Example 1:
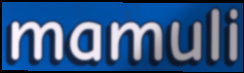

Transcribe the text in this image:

mamuli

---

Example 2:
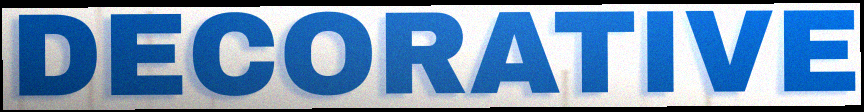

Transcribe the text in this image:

DECORATIVE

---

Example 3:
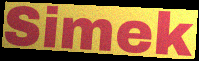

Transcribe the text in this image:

Simek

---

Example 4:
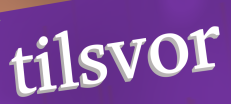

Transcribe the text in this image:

tilsvor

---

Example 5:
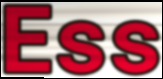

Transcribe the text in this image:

Ess